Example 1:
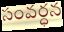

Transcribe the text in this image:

సంవర్ధన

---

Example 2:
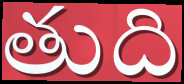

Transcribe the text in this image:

తుది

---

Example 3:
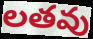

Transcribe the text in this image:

లతవు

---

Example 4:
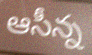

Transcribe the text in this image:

ఆసీన్న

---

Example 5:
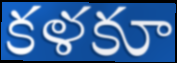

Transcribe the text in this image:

కళకూ